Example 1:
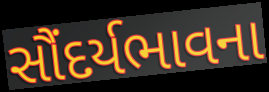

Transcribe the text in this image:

સૌંદર્યભાવના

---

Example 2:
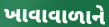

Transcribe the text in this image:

ખાવાવાળાને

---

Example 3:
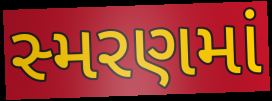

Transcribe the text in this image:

સ્મરણમાં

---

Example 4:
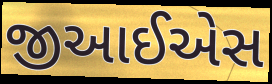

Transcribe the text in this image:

જીઆઈએસ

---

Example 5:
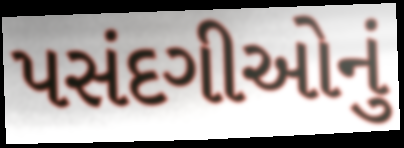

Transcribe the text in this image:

પસંદગીઓનું